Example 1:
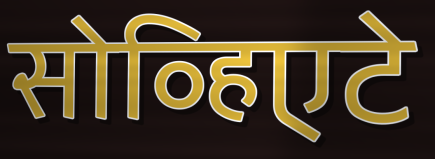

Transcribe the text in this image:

सोव्हिएटे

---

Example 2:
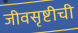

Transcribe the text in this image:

जीवसृष्टीची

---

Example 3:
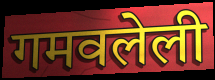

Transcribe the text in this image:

गमवलेली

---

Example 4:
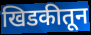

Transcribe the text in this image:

खिडकीतून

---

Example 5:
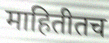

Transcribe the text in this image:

माहितीतच